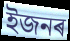
ইজনৰ